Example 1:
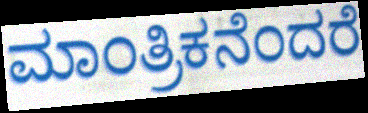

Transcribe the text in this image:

ಮಾಂತ್ರಿಕನೆಂದರೆ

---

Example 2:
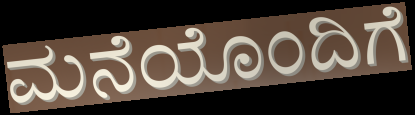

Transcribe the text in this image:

ಮನೆಯೊಂದಿಗೆ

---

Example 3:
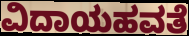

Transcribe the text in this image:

ವಿದಾಯಹವತೆ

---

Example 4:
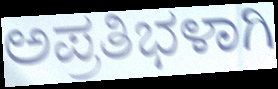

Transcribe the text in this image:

ಅಪ್ರತಿಭಳಾಗಿ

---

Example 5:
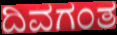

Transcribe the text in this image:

ದಿವಗಂತ